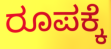
ರೂಪಕ್ಕೆ